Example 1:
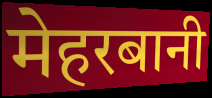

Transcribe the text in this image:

मेहरबानी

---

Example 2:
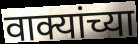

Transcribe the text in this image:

वाक्यांच्या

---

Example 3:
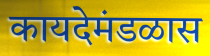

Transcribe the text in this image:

कायदेमंडळास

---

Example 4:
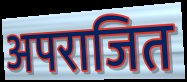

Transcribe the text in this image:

अपराजित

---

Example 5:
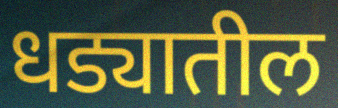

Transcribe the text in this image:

धड्यातील